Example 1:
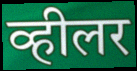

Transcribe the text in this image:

व्हीलर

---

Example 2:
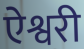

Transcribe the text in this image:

ऐश्वरी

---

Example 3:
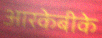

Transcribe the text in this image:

आरकेबीके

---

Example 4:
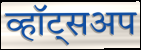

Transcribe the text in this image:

व्हॉट्सअप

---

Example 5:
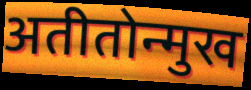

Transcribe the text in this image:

अतीतोन्मुख